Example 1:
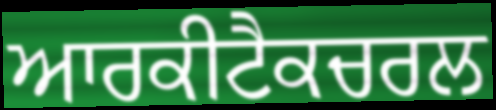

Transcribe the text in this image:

ਆਰਕੀਟੈਕਚਰਲ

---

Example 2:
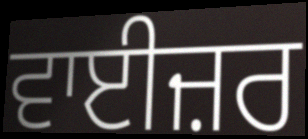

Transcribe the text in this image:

ਵਾਈਜ਼ਰ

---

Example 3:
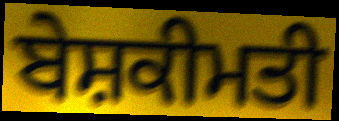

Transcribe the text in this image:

ਬੇਸ਼ਕੀਮਤੀ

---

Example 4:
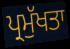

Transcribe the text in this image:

ਪ੍ਰਮੁੱਖਤਾ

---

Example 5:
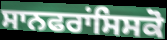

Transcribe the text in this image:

ਸਾਨਫਰਾਂਸਿਸਕੋ